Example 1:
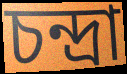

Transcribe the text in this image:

চন্দ্রা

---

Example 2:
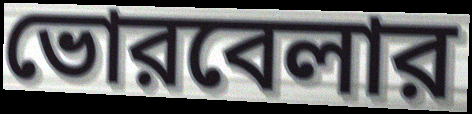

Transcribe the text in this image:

ভোরবেলার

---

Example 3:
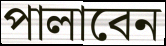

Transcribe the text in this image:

পালাবেন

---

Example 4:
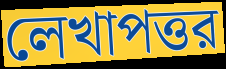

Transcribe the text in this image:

লেখাপত্তর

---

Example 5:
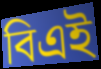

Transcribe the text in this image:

বিএই